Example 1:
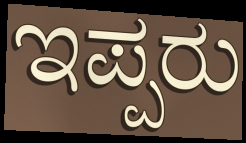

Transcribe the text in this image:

ಇಪ್ಪರು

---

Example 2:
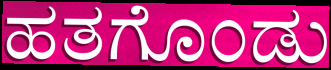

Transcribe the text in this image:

ಹತಗೊಂಡು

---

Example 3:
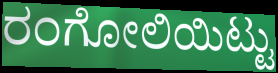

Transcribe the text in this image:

ರಂಗೋಲಿಯಿಟ್ಟು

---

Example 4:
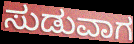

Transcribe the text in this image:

ಸುಡುವಾಗ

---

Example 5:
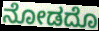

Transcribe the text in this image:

ನೋಡದೊ